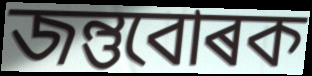
জন্তুবোৰক